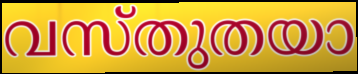
വസ്തുതയാ